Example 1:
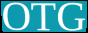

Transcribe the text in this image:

OTG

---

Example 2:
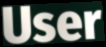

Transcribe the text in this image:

User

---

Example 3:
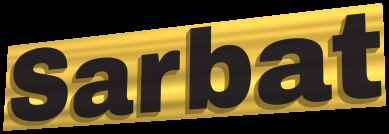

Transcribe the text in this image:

Sarbat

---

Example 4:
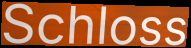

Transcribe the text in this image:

Schloss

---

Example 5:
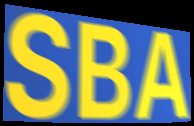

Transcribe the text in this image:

SBA